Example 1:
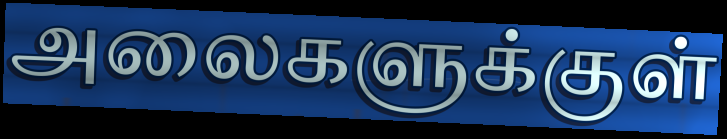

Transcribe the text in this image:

அலைகளுக்குள்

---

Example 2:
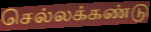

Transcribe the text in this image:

செல்லக்கண்டு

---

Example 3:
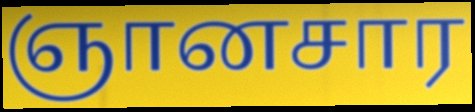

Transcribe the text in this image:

ஞானசார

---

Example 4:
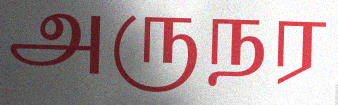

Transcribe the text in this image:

அருநர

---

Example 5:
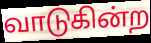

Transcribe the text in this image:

வாடுகின்ற